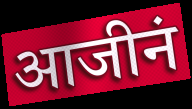
आजीनं